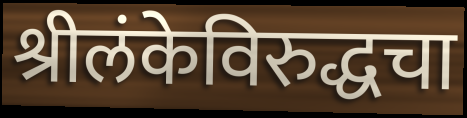
श्रीलंकेविरुद्धचा